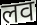
लव